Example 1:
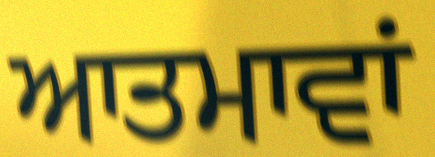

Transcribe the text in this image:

ਆਤਮਾਵਾਂ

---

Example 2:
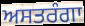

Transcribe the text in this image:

ਅਸਤਰੰਗਾ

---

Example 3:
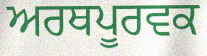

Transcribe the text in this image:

ਅਰਥਪੂਰਵਕ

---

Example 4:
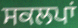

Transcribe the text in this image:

ਸਕਲਪਾਂ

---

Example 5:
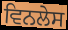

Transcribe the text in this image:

ਵਿਨਲੇਸ